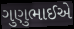
ગુણુભાઈએ